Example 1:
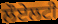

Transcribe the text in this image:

ਲੌਏਲਟੀ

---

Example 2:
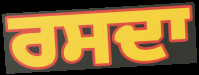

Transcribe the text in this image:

ਰਸਦਾ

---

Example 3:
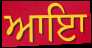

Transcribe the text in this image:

ਆਇਾ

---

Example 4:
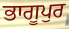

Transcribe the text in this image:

ਭਾਗੂਪੁਰ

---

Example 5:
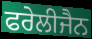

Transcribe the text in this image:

ਫਰੇਲੀਜੈਨ